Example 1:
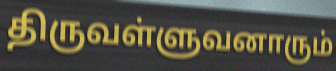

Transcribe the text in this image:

திருவள்ளுவனாரும்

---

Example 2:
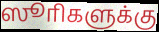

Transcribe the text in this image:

ஸூரிகளுக்கு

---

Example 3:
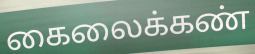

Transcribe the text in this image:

கைலைக்கண்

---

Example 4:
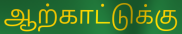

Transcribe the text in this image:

ஆற்காட்டுக்கு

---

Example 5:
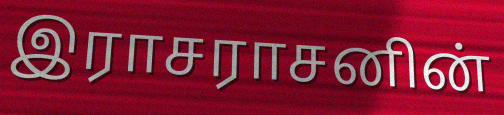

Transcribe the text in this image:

இராசராசனின்